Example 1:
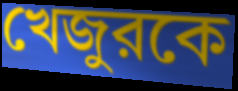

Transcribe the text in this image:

খেজুরকে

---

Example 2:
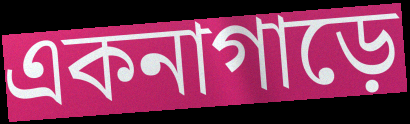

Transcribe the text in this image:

একনাগাড়ে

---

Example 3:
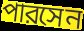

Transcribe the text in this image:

পারসেন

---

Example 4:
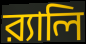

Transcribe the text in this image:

র‍্যালি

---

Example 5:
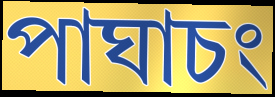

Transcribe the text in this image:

পাঘাচং